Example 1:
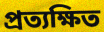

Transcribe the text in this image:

প্রত্যক্ষিত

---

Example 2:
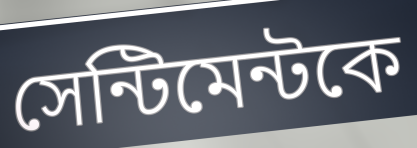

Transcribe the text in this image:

সেন্টিমেন্টকে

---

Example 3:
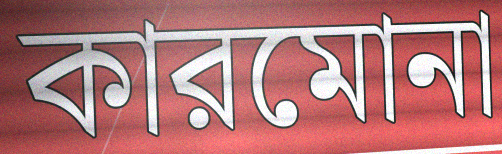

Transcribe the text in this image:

কারমোনা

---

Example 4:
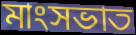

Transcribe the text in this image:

মাংসভাত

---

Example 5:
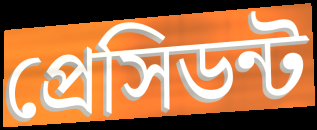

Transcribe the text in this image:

প্রেসিডন্ট